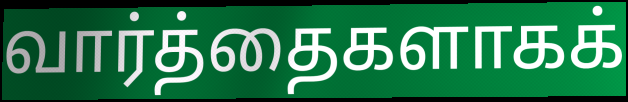
வார்த்தைகளாகக்